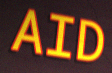
AID